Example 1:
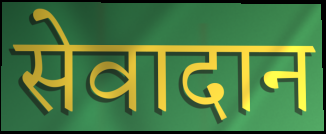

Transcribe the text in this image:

सेवादान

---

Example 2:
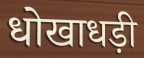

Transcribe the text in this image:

धोखाधड़ी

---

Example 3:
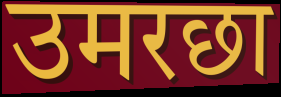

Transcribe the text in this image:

उमरछा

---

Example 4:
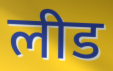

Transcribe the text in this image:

लीड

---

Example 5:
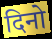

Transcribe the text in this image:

दिनो